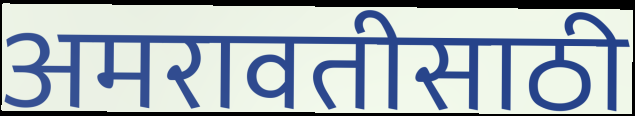
अमरावतीसाठी